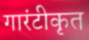
गारंटीकृत